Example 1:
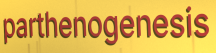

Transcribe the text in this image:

parthenogenesis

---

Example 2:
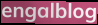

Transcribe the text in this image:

engalblog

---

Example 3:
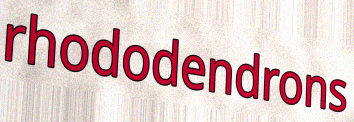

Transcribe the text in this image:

rhododendrons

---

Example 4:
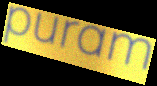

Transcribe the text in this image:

puram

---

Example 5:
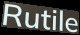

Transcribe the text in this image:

Rutile